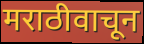
मराठीवाचून